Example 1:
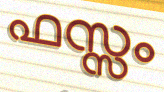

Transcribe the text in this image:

ഫസ്സം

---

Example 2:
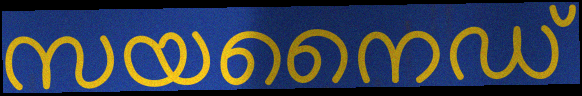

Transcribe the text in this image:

സയനൈഡ്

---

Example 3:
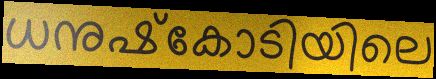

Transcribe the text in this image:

ധനുഷ്‌കോടിയിലെ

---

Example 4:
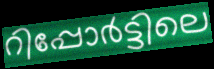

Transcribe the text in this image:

റിപ്പോർട്ടിലെ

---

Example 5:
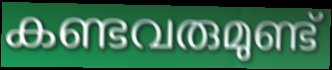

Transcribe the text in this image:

കണ്ടവരുമുണ്ട്